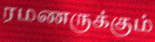
ரமணருக்கும்